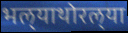
भल्याथोरल्या